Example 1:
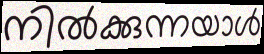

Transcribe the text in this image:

നിൽക്കുന്നയാൾ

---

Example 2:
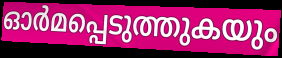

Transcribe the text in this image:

ഓർമപ്പെടുത്തുകയും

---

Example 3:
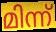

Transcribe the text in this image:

മിന്ന്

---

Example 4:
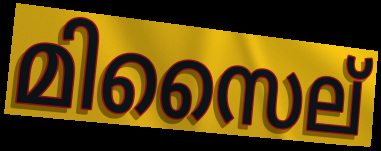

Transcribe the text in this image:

മിസൈല്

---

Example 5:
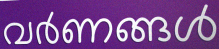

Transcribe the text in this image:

വർണങ്ങൾ